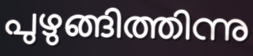
പുഴുങ്ങിത്തിന്നു